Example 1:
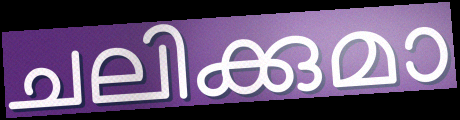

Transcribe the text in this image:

ചലിക്കുമാ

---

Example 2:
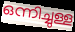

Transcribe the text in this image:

ഒന്നിച്ചുള്ള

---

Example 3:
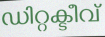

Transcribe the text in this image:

ഡിറ്റക്ടീവ്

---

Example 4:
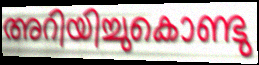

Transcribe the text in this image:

അറിയിച്ചുകൊണ്ടു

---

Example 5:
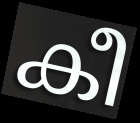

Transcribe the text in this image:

കീ